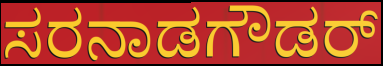
ಸರನಾಡಗೌಡರ್